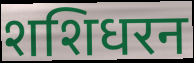
शशिधरन